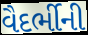
વૈદર્ભીની